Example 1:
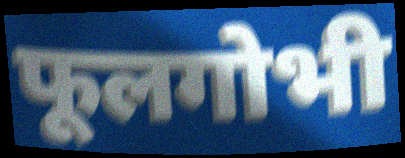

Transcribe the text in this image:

फूलगोभी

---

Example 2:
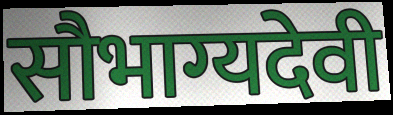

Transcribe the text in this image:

सौभाग्यदेवी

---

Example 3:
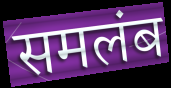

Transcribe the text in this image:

समलंब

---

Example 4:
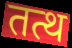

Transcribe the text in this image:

तत्थ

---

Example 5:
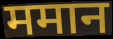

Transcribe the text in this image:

ममान